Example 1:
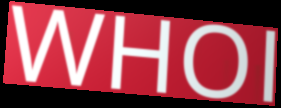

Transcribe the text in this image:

WHOI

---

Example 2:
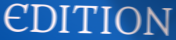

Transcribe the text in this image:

EDITION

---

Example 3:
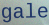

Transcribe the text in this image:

gale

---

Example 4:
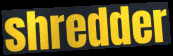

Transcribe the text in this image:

shredder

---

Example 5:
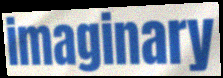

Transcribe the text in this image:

imaginary